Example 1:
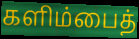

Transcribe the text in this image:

களிம்பைத்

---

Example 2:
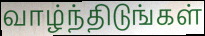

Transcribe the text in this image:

வாழ்ந்திடுங்கள்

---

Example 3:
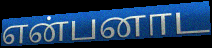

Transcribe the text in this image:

என்பனாட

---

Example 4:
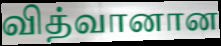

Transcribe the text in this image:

வித்வானான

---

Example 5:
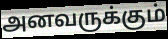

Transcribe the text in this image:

அனவருக்கும்